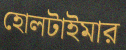
হোলটাইমার